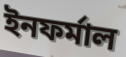
ইনফর্মাল